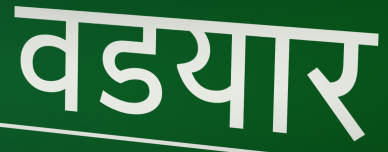
वडयार